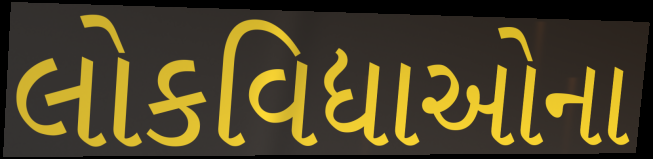
લોકવિદ્યાઓના